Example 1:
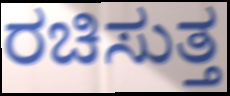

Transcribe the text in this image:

ರಚಿಸುತ್ತ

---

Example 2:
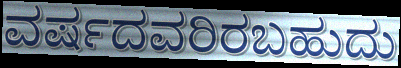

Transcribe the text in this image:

ವರ್ಷದವರಿರಬಹುದು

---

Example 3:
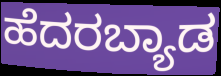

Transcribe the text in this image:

ಹೆದರಬ್ಯಾಡ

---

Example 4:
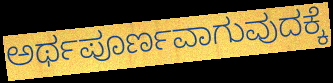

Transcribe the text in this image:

ಅರ್ಥಪೂರ್ಣವಾಗುವುದಕ್ಕೆ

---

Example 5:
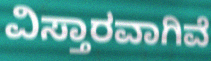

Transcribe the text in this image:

ವಿಸ್ತಾರವಾಗಿವೆ